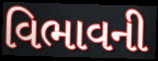
વિભાવની